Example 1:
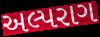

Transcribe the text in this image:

અલ્પરાગ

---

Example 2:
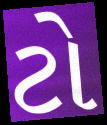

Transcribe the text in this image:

ટો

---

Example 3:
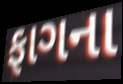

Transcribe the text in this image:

ફાગના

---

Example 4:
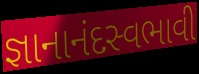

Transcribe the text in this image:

જ્ઞાનાનંદસ્વભાવી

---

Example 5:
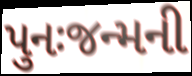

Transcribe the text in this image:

પુનઃજન્મની